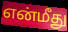
என்மீது